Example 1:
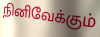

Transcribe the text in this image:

நினிவேக்கும்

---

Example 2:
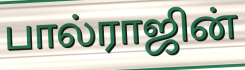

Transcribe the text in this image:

பால்ராஜின்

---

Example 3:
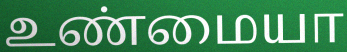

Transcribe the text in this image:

உண்மையா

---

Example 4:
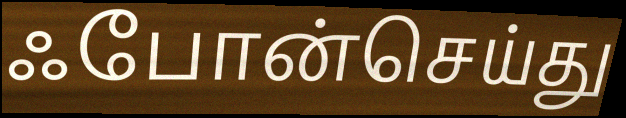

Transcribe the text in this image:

ஃபோன்செய்து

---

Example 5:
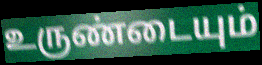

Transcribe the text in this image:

உருண்டையும்